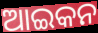
ଆଇକନ